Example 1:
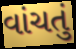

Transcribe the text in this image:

વાંચતું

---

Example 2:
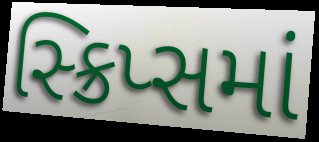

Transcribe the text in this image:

સ્ક્રિપ્સમાં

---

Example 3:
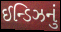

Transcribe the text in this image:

ઈન્ડિઝનું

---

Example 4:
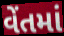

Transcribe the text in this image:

વેંતમાં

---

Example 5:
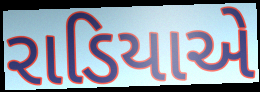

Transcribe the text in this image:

રાડિયાએ